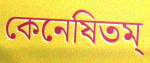
কেনেষিতম্